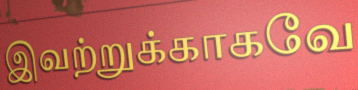
இவற்றுக்காகவே